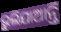
ଭୁଲିଯାଆନ୍ତି